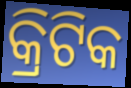
କ୍ରିଟିକ